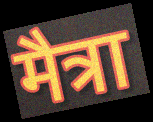
मैत्रा